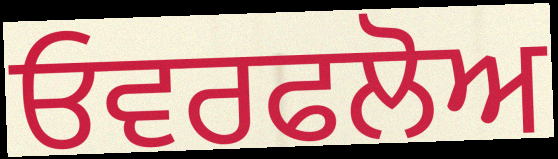
ਓਵਰਫਲੋਅ